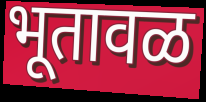
भूतावळ